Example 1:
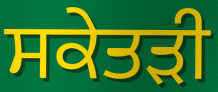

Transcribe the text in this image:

ਸਕੇਤੜੀ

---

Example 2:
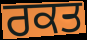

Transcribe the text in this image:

ਰਕਤ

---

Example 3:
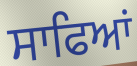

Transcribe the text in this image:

ਸਾਫਿਆਂ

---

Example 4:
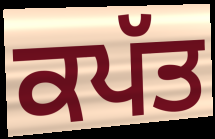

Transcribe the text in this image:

ਕਪੱਤ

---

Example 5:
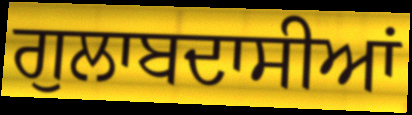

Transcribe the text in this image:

ਗੁਲਾਬਦਾਸੀਆਂ